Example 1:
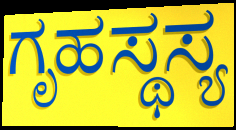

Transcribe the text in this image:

ಗೃಹಸ್ಥಸ್ಯ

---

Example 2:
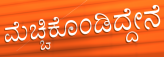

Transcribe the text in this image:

ಮೆಚ್ಚಿಕೊಂಡಿದ್ದೇನೆ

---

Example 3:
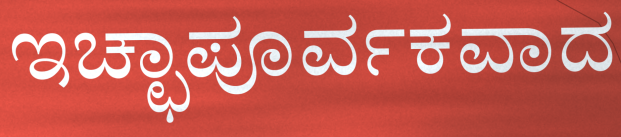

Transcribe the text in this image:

ಇಚ್ಛಾಪೂರ್ವಕವಾದ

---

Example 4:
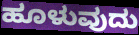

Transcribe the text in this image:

ಹೂಳುವುದು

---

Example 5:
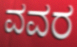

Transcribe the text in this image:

ವವರ